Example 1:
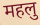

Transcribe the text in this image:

महलु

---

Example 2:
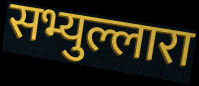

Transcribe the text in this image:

सभ्युल्लारा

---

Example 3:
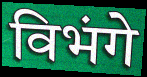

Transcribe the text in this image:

विभंगे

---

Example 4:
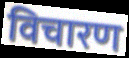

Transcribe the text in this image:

विचारण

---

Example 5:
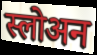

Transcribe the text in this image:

स्लोअन